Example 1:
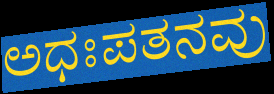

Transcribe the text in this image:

ಅಧಃಪತನವು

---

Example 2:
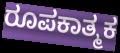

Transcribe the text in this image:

ರೂಪಕಾತ್ಮಕ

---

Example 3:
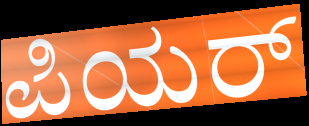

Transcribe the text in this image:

ಪಿಯರ್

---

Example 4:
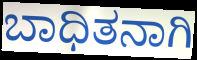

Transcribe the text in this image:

ಬಾಧಿತನಾಗಿ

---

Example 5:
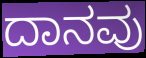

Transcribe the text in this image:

ದಾನವು